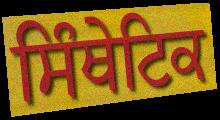
ਸਿੰਥੇਟਿਕ